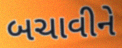
બચાવીને